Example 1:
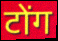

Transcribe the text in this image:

टोंग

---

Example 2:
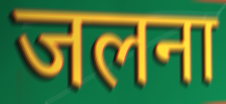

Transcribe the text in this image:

जलना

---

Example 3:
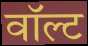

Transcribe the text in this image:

वॉल्ट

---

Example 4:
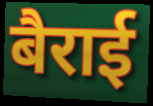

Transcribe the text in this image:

बैराई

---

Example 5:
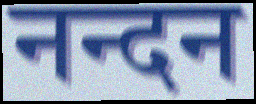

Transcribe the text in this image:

नन्‍दन